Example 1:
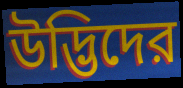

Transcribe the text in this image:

উদ্ভিদের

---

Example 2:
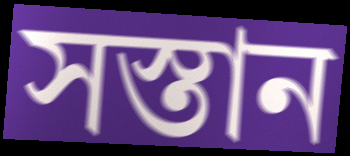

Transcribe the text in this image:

সস্তান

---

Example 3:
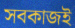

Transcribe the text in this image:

সবকাজই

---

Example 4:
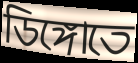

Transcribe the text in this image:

ডিঙ্গোতে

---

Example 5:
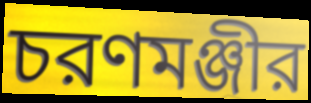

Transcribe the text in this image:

চরণমঞ্জীর